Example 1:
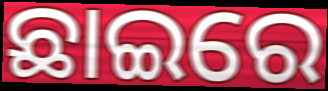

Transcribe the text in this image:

ଛାଇରେ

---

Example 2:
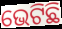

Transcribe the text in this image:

ଭେଟିଛି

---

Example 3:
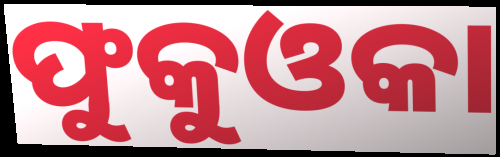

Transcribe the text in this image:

ଫୁକୁଓକା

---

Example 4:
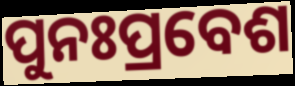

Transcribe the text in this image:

ପୁନଃପ୍ରବେଶ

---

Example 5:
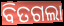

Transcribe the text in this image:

ବିତଗଲା